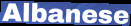
Albanese